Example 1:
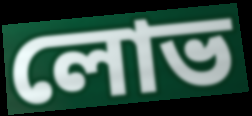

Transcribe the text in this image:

লোভ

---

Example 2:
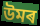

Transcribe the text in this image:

উমৰ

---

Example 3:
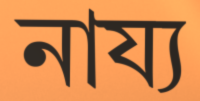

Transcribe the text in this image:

নায্য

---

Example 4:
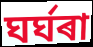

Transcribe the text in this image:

ঘৰ্ঘৰা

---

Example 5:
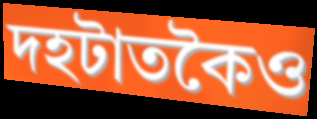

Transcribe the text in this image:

দহটাতকৈও